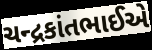
ચન્દ્રકાંતભાઈએ